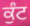
ਕੁੰਟ